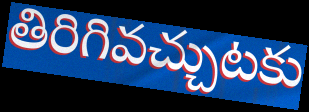
తిరిగివచ్చుటకు